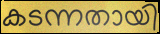
കടന്നതായി